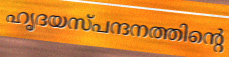
ഹൃദയസ്പന്ദനത്തിന്റെ